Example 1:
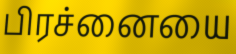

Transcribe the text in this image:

பிரச்னையை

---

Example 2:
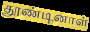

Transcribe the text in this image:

தூண்டினாள்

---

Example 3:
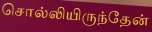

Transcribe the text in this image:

சொல்லியிருந்தேன்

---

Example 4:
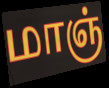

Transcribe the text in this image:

மாஞ்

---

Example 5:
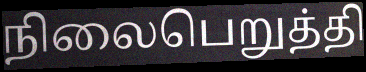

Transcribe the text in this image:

நிலைபெறுத்தி